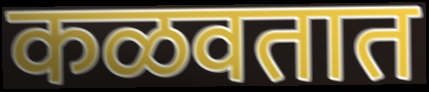
कळवतात